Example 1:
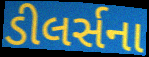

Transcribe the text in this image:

ડીલર્સના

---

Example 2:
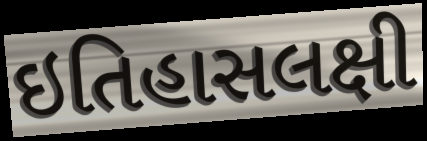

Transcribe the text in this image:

ઇતિહાસલક્ષી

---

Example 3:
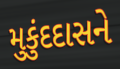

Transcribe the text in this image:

મુકુંદદાસને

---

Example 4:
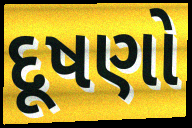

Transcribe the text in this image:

દૂષણો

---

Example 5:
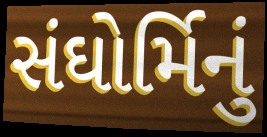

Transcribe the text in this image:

સંઘોર્મિનું